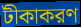
টীকাকরণ